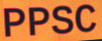
PPSC